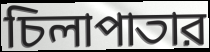
চিলাপাতার